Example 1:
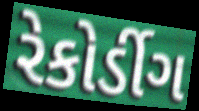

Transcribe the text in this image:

રેકોર્ડીગ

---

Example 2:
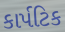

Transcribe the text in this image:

કાર્પટિક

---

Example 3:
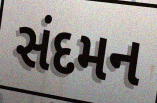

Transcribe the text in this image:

સંદમન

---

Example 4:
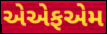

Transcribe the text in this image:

એએફએમ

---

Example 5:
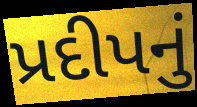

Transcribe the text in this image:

પ્રદીપનું